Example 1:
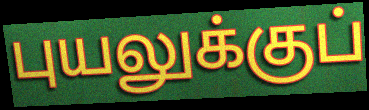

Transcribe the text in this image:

புயலுக்குப்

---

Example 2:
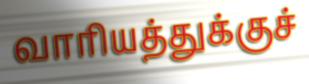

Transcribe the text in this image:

வாரியத்துக்குச்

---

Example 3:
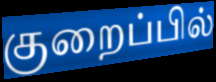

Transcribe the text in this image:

குறைப்பில்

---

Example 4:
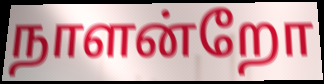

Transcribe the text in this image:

நாளன்றோ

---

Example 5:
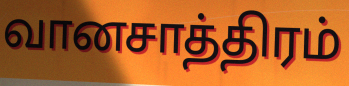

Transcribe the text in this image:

வானசாத்திரம்